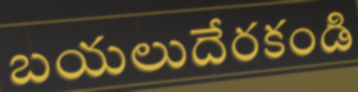
బయలుదేరకండి